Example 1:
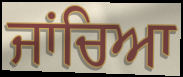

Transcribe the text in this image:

ਜਾਂਚਿਆ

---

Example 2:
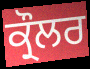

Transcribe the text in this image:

ਕ੍ਰੌਲਰ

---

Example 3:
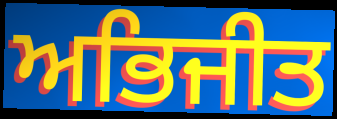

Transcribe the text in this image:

ਅਭਿਜੀਤ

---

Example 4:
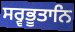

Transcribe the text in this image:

ਸਰ੍ਵਭੂਤਾਨਿ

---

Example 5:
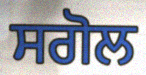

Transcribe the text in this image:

ਸਗੋਲ